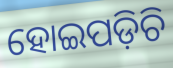
ହୋଇପଡ଼ିଚି